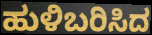
ಹುಳಿಬರಿಸಿದ